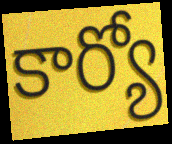
కార్యో